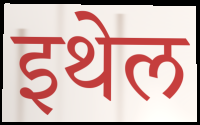
इथेल